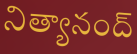
నిత్యానంద్